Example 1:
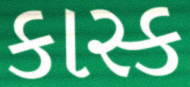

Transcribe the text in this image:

કાસ્ક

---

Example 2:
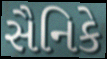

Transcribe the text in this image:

સૈનિકે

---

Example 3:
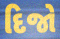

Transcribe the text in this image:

દિજો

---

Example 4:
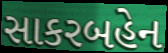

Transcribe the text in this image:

સાકરબહેન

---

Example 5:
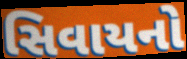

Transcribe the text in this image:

સિવાયનો